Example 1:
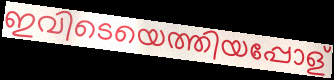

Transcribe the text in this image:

ഇവിടെയെത്തിയപ്പോള്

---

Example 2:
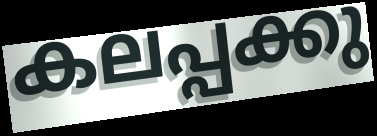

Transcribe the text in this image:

കലപ്പക്കു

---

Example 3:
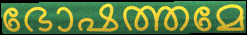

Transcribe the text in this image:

ഭോഷത്തമേ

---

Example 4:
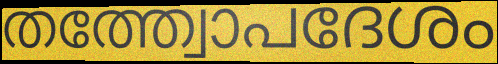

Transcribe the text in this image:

തത്ത്വോപദേശം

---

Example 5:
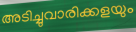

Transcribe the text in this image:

അടിച്ചുവാരിക്കളയും